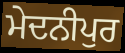
ਮੇਦਨੀਪੁਰ